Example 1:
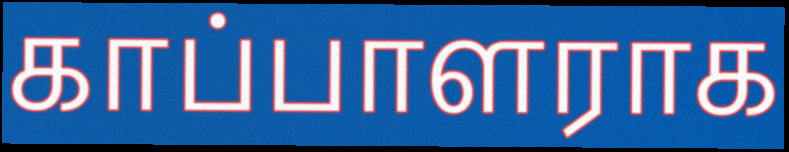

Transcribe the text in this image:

காப்பாளராக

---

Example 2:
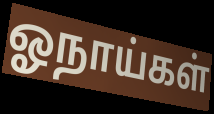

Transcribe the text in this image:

ஓநாய்கள்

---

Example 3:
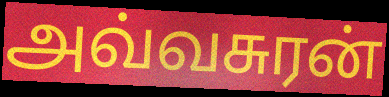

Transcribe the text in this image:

அவ்வசுரன்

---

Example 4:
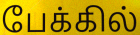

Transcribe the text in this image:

பேக்கில்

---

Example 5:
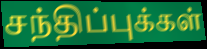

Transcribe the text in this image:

சந்திப்புக்கள்